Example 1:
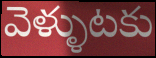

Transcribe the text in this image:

వెళ్ళుటకు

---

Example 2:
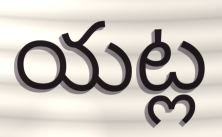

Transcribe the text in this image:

యట్ల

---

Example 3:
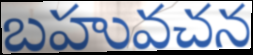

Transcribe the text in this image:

బహువచన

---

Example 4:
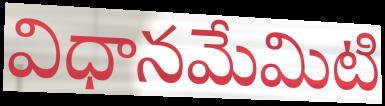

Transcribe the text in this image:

విధానమేమిటి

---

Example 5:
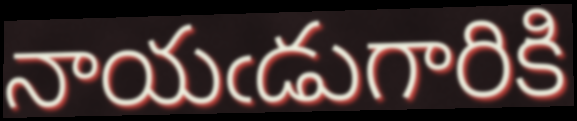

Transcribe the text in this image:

నాయఁడుగారికి